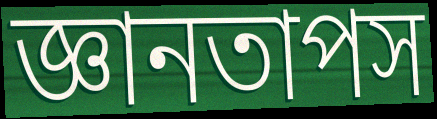
জ্ঞানতাপস